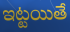
ఇట్టయితే